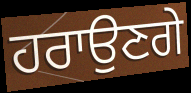
ਹਰਾਉਣਗੇ